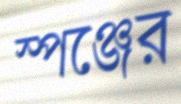
স্পঞ্জের